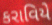
કરાવિયે